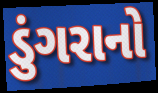
ડુંગરાનો